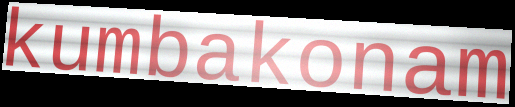
kumbakonam